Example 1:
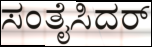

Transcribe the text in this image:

ಸಂತೈಸಿದರ್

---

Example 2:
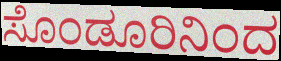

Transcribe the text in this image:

ಸೊಂಡೂರಿನಿಂದ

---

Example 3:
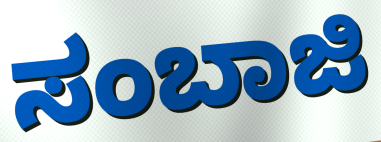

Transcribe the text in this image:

ಸಂಬಾಜಿ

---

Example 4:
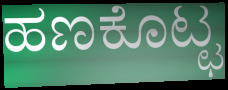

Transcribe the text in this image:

ಹಣಕೊಟ್ಟ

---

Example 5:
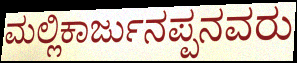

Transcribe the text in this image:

ಮಲ್ಲಿಕಾರ್ಜುನಪ್ಪನವರು